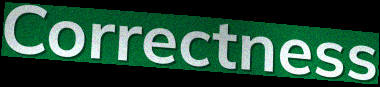
Correctness